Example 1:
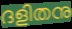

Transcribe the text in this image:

ദളിതനു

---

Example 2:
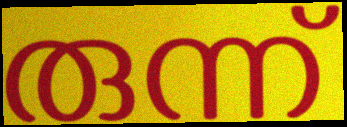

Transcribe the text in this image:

രുന്ന്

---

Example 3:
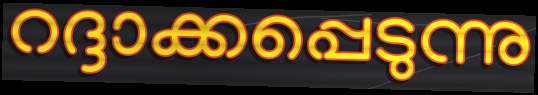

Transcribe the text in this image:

റദ്ദാക്കപ്പെടുന്നു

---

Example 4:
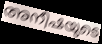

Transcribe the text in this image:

അനീഷയുടെ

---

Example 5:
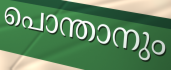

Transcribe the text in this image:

പൊന്താനും